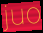
juo